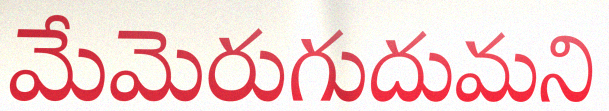
మేమెరుగుదుమని